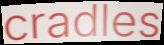
cradles